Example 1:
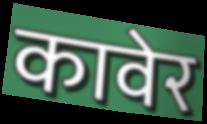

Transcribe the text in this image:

कावेर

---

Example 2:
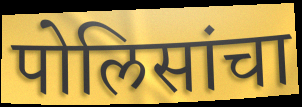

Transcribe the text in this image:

पोलिसांचा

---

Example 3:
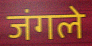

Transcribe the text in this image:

जंगले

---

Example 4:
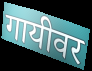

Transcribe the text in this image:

गायीवर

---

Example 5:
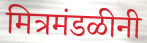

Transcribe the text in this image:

मित्रमंडळीनी